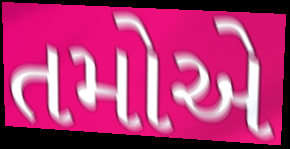
તમોએ